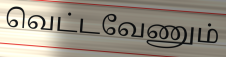
வெட்டவேணும்